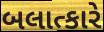
બલાત્કારે